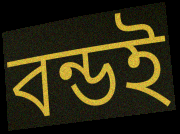
বন্ডই